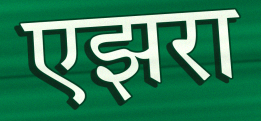
एझरा